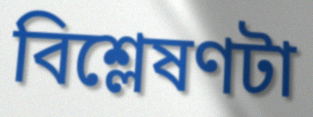
বিশ্লেষণটা